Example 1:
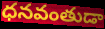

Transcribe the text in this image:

ధనవంతుడా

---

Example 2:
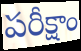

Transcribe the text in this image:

పరీక్షాం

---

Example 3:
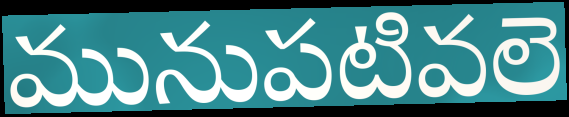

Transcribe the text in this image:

మునుపటివలె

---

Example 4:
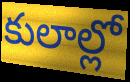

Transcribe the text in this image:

కులాల్లో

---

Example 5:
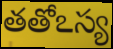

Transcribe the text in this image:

తతోఽస్య